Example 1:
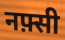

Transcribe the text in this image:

नफ़्सी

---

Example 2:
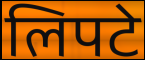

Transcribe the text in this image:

लिपटे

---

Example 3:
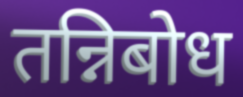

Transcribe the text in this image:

तन्निबोध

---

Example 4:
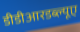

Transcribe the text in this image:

डीडीआरडब्ल्यूए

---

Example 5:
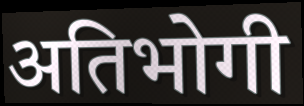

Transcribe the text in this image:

अतिभोगी